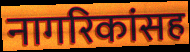
नागरिकांसह